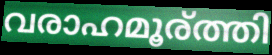
വരാഹമൂര്ത്തി